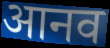
आनव